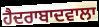
ਹੈਦਰਾਬਾਦਵਾਲਾ